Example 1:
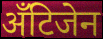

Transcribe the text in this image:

अँटिजेन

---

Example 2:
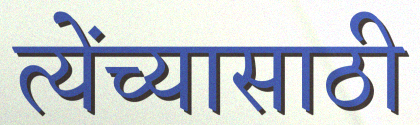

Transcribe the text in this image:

त्येंच्यासाठी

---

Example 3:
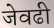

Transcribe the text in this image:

जेवढी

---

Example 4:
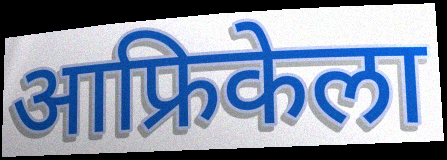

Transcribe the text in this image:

आफ्रिकेला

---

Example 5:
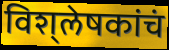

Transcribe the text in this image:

विश्लेषकांचं